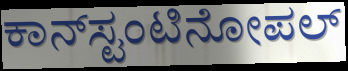
ಕಾನ್‍ಸ್ಟಂಟಿನೋಪಲ್